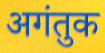
अगंतुक